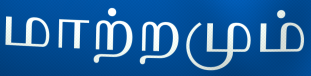
மாற்றமும்